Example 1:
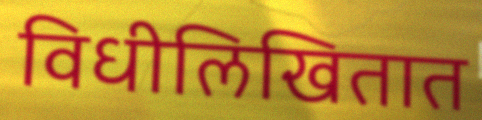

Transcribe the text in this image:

विधीलिखितात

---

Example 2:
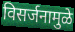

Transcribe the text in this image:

विसर्जनामुळे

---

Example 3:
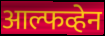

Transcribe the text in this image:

आल्फव्हेन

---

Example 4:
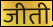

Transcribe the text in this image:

जीती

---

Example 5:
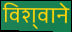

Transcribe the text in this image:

विश्वाने